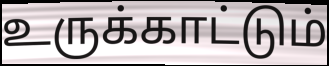
உருக்காட்டும்